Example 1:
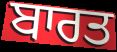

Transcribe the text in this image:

ਬਾਰਤ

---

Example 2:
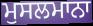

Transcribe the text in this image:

ਮੁਸਲਮਾਨਾ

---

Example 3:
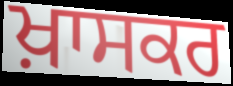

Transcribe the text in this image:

ਖ਼ਾਸਕਰ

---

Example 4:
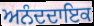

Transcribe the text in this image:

ਅਨੰਦਦਾਇਕ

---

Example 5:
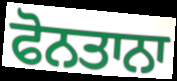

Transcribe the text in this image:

ਫੋਨਤਾਨਾ